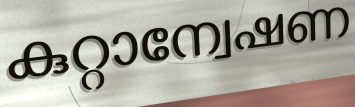
കുറ്റാന്വേഷണ